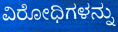
ವಿರೋಧಿಗಳನ್ನು